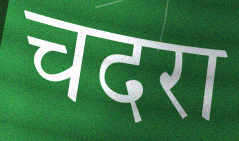
चदरा